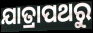
ଯାତ୍ରାପଥରୁ